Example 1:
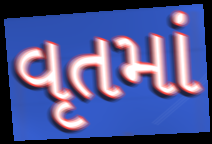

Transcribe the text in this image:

વૃતમાં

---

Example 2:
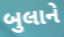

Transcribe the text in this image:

બુલાને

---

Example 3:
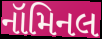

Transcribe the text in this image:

નૉમિનલ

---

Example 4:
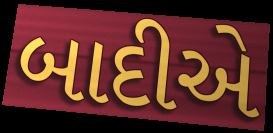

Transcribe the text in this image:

બાદીએ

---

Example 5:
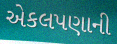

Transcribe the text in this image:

એકલપણાની